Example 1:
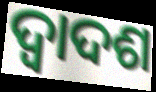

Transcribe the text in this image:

ଦ୍ବାଦଶ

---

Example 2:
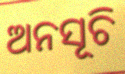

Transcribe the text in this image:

ଅନସୂଚି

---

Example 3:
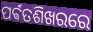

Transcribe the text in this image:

ପର୍ଵତଶିଖରରେ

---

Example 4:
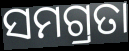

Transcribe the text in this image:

ସମଗ୍ରତା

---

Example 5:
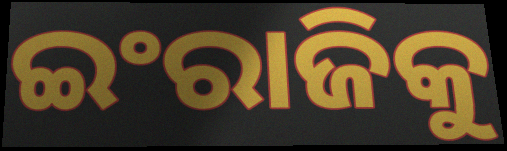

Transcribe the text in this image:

ଇଂରାଜିକୁ